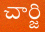
చార్జి